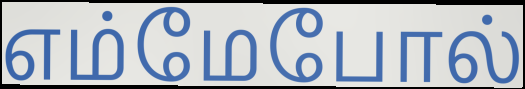
எம்மேபோல்